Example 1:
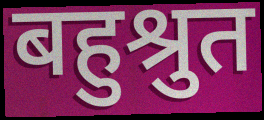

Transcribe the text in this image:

बहुश्रुत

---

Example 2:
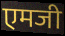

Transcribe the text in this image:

एमजी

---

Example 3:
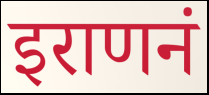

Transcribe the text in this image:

इराणनं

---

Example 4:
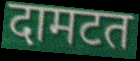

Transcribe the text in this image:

दामटत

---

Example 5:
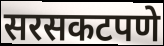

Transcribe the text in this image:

सरसकटपणे